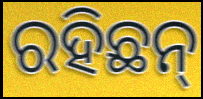
ରହିଛନ୍